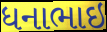
ધનાભાઇ